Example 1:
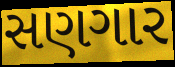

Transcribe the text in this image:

સણગાર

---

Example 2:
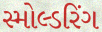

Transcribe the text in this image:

સ્મોલ્ડરિંગ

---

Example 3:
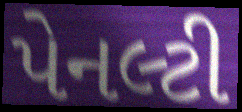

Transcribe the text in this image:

પેનલ્ટી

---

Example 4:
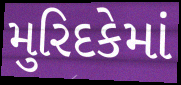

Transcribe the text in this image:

મુરિદકેમાં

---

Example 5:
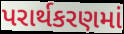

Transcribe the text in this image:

પરાર્થકરણમાં